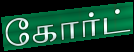
கோர்ட்